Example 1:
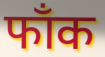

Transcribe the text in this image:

फाँक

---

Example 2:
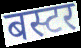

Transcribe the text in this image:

बस्टर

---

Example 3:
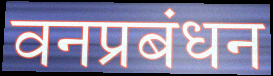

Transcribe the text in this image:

वनप्रबंधन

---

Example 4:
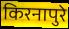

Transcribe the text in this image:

किरनापुरे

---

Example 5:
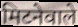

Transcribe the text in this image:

मिटनेवाले